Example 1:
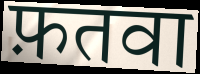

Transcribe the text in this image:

फ़तवा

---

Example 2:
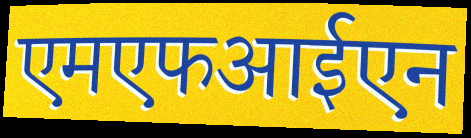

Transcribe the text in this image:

एमएफआईएन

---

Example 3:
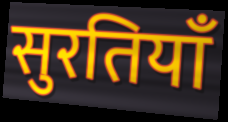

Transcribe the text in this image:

सुरतियाँ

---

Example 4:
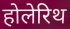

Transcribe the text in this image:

होलेरिथ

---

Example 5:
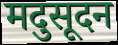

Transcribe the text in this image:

मदुसूदन